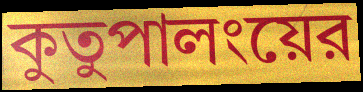
কুতুপালংয়ের